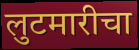
लुटमारीचा